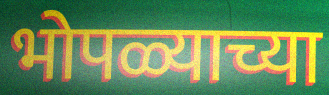
भोपळ्याच्या